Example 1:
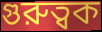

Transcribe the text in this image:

গুৰুত্বক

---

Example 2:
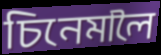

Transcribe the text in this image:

চিনেমালৈ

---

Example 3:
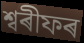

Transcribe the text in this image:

শ্বৰীফৰ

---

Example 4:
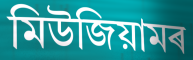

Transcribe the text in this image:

মিউজিয়ামৰ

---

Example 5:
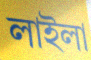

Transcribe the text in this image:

লাইলা